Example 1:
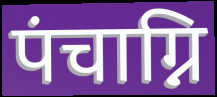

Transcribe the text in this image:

पंचाग्नि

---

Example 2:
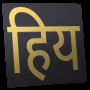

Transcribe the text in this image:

हिय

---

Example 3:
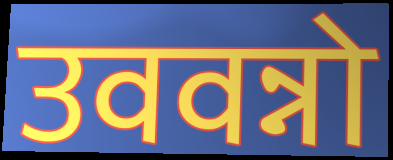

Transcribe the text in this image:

उववन्नो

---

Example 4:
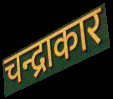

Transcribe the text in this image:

चन्द्राकार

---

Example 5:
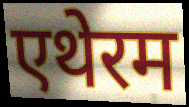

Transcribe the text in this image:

एथेरम